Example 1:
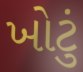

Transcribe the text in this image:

ખોટું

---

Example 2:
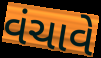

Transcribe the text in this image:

વંચાવે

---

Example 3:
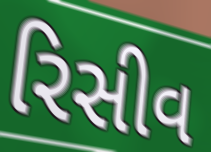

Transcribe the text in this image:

રિસીવ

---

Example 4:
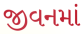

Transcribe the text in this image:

જીવનમાં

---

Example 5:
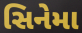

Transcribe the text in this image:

સિનેમા